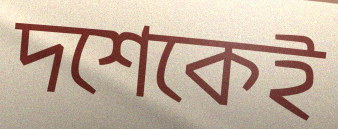
দশেকেই